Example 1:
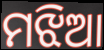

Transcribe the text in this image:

ମଝିଆ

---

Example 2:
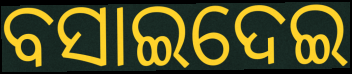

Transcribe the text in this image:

ବସାଇଦେଇ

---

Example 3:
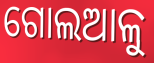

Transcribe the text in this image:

ଗୋଲଆଳୁ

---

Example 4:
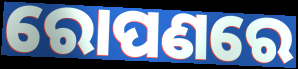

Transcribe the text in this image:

ରୋପଣରେ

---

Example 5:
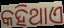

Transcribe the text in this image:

କହିଥାଏ